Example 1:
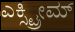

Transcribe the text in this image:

ಎಕ್ಸ್ಟ್ರೀಮ್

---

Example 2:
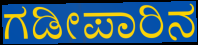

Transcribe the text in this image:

ಗಡೀಪಾರಿನ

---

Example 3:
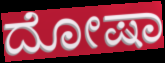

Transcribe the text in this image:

ದೋಷಾ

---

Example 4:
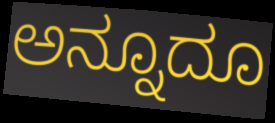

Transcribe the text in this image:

ಅನ್ನೂದೂ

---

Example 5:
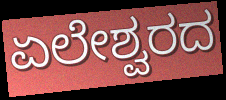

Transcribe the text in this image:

ಏಲೇಶ್ವರದ